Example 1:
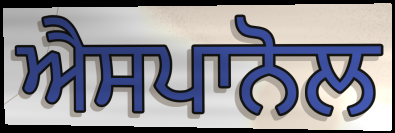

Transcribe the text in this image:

ਐਸਪਾਨੋਲ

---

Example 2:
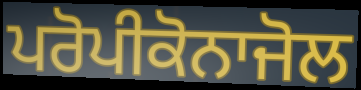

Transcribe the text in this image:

ਪਰੋਪੀਕੋਨਾਜੋਲ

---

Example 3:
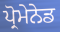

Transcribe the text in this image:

ਪ੍ਰੋਮੇਨੇਡ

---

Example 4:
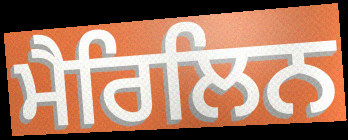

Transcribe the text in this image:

ਮੈਰਿਲਿਨ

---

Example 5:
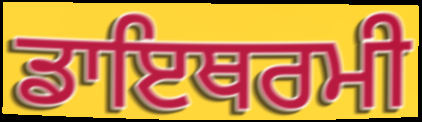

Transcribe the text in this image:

ਡਾਇਥਰਮੀ